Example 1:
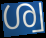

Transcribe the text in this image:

ശ്വ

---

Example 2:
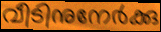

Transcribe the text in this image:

വീടിനുനേർക്കു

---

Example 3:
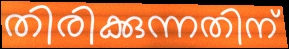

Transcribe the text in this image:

തിരിക്കുന്നതിന്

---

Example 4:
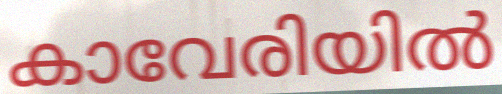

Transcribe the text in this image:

കാവേരിയിൽ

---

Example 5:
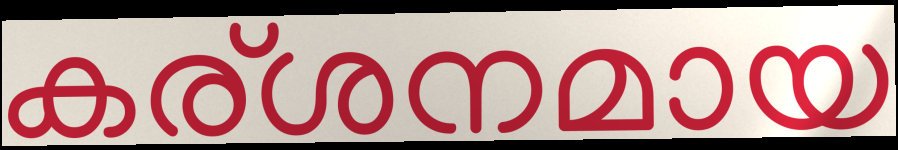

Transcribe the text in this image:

കര്ശനമായ